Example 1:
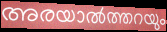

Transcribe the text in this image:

അരയാൽത്തറയും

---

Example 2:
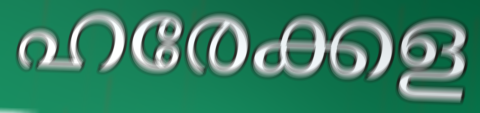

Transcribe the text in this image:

ഹരേക്കള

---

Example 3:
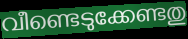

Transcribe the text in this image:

വീണ്ടെടുക്കേണ്ടതു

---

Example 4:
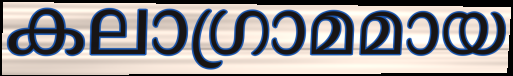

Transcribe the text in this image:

കലാഗ്രാമമായ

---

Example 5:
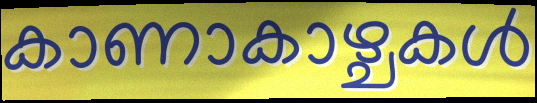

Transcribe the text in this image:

കാണാകാഴ്ചകൾ